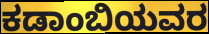
ಕಡಾಂಬಿಯವರ